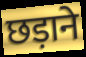
छड़ाने